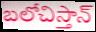
బలోచిస్తాన్